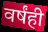
वर्षंही